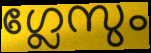
ഗ്ലേസും